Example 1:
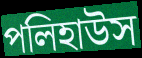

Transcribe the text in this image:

পলিহাউস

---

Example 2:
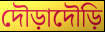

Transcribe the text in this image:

দৌড়াদৌড়ি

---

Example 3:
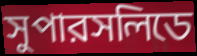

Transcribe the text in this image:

সুপারসলিডে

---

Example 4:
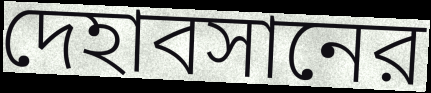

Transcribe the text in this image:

দেহাবসানের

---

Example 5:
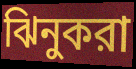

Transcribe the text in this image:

ঝিনুকরা